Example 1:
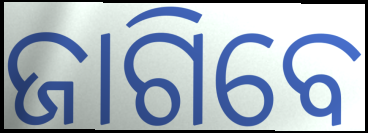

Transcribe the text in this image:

ଜାଗିବେ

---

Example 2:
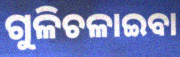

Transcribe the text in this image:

ଗୁଳିଚଳାଇବା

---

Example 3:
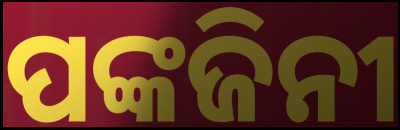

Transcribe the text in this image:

ପଙ୍କଜିନୀ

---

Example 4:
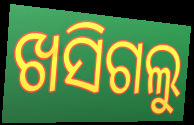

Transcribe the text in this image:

ଖସିଗଲୁ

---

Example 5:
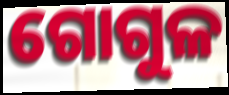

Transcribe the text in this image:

ଗୋଗୁଳ